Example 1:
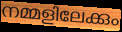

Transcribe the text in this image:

നമ്മളിലേക്കും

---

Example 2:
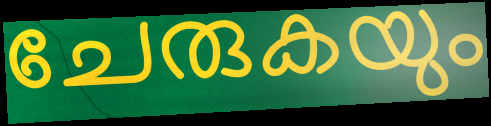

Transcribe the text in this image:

ചേരുകയും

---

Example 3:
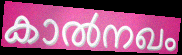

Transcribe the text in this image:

കാൽനഖം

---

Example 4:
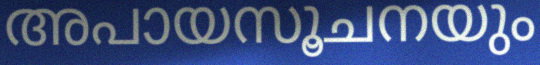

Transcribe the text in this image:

അപായസൂചനയും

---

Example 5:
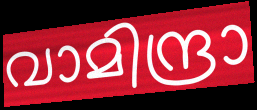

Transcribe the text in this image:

വാമിന്ദ്രാ